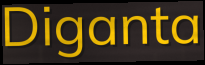
Diganta